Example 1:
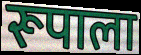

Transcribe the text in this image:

रूपाला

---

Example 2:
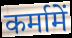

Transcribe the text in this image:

कर्मामें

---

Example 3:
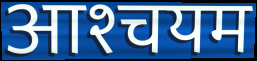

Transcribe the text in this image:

आश्चयम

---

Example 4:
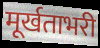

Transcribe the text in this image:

मूर्खताभरी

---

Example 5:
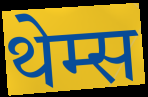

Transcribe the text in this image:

थेम्स